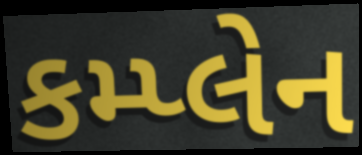
કમ્પ્લેન